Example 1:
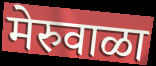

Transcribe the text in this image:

मेरुवाळा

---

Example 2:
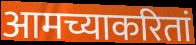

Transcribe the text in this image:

आमच्याकरितां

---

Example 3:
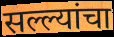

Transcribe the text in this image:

सल्ल्यांचा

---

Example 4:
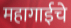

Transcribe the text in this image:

महागाईचे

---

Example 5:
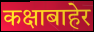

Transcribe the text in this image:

कक्षाबाहेर